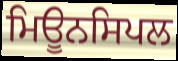
ਮਿਊਨਸਿਪਲ